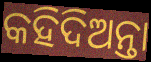
କହିଦିଅନ୍ତା